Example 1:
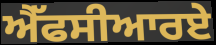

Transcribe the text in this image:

ਐੱਫਸੀਆਰਏ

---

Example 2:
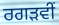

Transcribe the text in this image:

ਰਗੜਵੀਂ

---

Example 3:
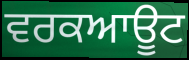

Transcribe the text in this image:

ਵਰਕਆਊਟ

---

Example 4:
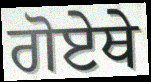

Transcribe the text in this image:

ਗੋਏਥੇ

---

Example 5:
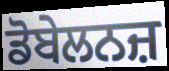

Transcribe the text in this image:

ਡੋਬੇਲਨਜ਼